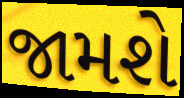
જામશે